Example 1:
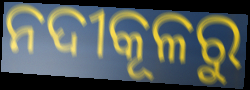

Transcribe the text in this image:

ନଦୀକୂଳରୁ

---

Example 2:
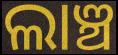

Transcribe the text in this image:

ଲାଞ୍ଚ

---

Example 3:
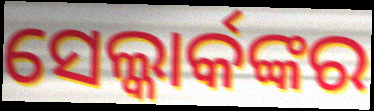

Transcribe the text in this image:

ସେଲ୍କାର୍କଙ୍କର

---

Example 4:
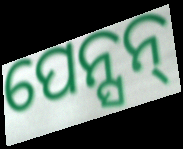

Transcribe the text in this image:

ପେନ୍ସନ୍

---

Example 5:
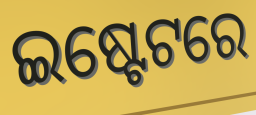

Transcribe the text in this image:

ଇଷ୍ଟେଟରେ